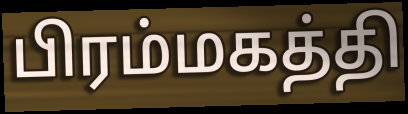
பிரம்மகத்தி